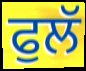
ਫੁਲੱ